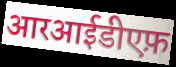
आरआईडीएफ़